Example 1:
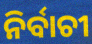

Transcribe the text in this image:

ନିର୍ବାଚୀ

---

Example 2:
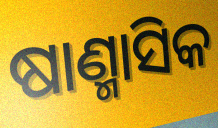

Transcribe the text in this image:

ଷାଣ୍ମାସିକ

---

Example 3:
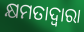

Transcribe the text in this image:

କ୍ଷମତାଦ୍ୱାରା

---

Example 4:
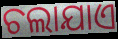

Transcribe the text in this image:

ଚଲାଯାଏ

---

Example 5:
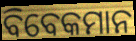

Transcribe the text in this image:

ବିବେକମାନ